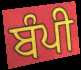
ਬੰਪੀ